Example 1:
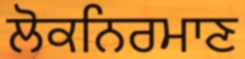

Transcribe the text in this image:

ਲੋਕਨਿਰਮਾਣ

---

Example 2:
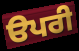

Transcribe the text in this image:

ੳਪਰੀ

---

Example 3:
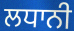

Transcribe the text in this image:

ਲਧਾਨੀ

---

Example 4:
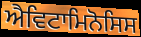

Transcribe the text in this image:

ਐਵਿਟਾਮਿਨੋਸਿਸ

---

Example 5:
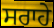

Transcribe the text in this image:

ਸਰਾਹੇ